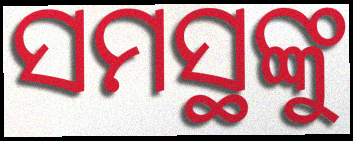
ସମସ୍ଥଙ୍କୁ